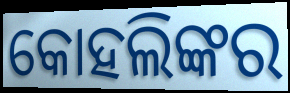
କୋହଲିଙ୍କର